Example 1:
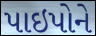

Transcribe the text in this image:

પાઇપોને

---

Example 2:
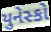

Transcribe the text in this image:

યુનેસ્કો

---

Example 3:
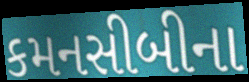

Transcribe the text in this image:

કમનસીબીના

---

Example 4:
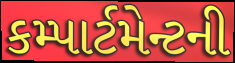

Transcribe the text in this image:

કમ્પાર્ટમેન્ટની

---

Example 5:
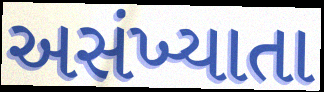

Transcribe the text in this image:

અસંખ્યાતા